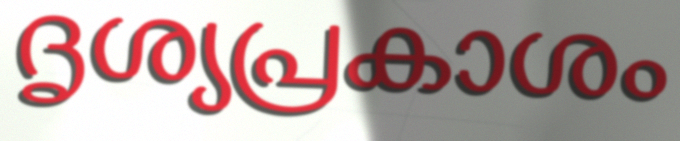
ദൃശ്യപ്രകാശം